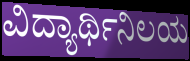
ವಿದ್ಯಾರ್ಥಿನಿಲಯ